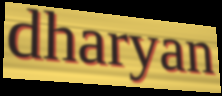
dharyan